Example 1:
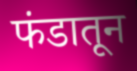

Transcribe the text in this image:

फंडातून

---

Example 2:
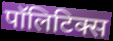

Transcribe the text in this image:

पॉलिटिक्स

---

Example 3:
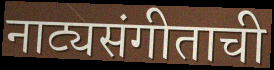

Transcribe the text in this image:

नाट्यसंगीताची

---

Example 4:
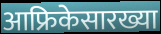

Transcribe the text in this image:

आफ्रिकेसारख्या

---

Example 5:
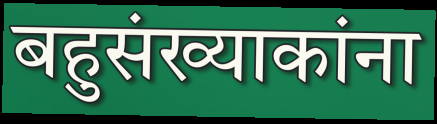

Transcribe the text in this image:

बहुसंख्याकांना